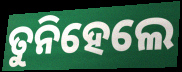
ତୁନିହେଲେ